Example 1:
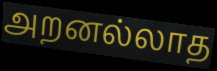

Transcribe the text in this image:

அறனல்லாத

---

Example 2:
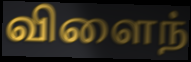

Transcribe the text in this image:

விளைந்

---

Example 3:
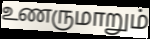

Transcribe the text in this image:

உணருமாறும்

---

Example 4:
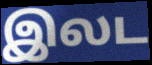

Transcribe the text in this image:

இலட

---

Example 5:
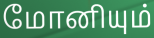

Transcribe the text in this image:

மோனியும்